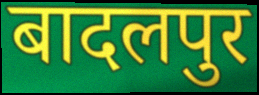
बादलपुर